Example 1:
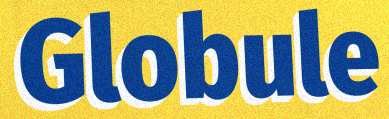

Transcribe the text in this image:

Globule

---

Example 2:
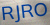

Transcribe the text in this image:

RJRO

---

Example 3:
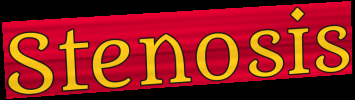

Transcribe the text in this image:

Stenosis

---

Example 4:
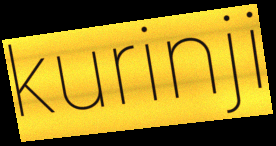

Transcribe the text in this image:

kurinji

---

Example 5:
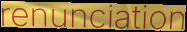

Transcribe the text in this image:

renunciation